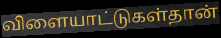
விளையாட்டுகள்தான்